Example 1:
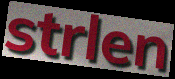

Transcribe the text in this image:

strlen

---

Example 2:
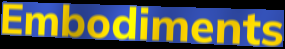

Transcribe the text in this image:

Embodiments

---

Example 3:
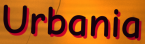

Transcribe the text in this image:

Urbania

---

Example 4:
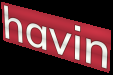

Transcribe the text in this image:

havin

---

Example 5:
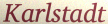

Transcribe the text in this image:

Karlstadt